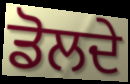
ਡੋਲਦੇ